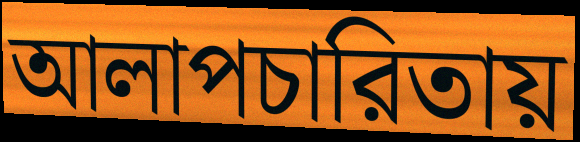
আলাপচারিতায়